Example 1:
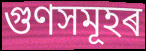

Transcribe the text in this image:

গুণসমূহৰ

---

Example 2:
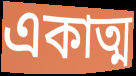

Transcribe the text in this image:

একাত্ম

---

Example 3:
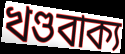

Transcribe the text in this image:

খণ্ডবাক্য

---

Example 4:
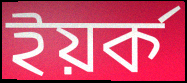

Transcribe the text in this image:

ইয়ৰ্ক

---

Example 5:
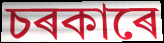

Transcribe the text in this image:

চৰকাৰে